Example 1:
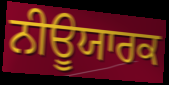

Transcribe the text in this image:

ਨੀਊਯਾਰਕ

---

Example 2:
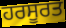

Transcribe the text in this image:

ਹਰਸੂਰਤ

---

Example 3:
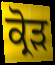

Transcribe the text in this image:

ਕ੍ਰੋੜ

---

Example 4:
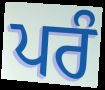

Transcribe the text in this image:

ਪਰੰ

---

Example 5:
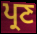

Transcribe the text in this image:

ਪ੍ਰਣ